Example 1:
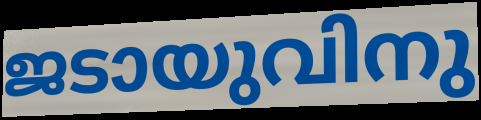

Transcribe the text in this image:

ജടായുവിനു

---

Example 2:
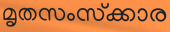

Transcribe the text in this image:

മൃതസംസ്‌ക്കാര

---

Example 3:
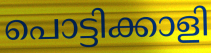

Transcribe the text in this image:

പൊട്ടിക്കാളി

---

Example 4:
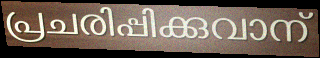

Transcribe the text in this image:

പ്രചരിപ്പിക്കുവാന്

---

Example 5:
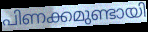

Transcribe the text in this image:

പിണക്കമുണ്ടായി